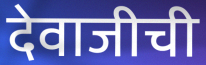
देवाजीची